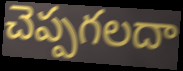
చెప్పగలదా